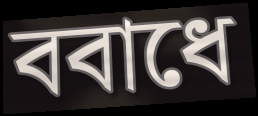
ববাধে